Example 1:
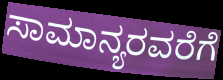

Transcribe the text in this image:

ಸಾಮಾನ್ಯರವರೆಗೆ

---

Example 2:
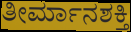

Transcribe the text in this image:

ತೀರ್ಮಾನಶಕ್ತಿ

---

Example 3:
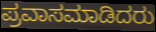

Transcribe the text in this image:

ಪ್ರವಾಸಮಾಡಿದರು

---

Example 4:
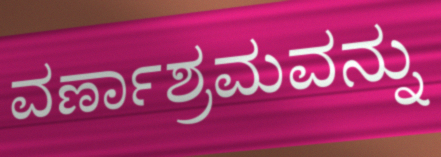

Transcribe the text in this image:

ವರ್ಣಾಶ್ರಮವನ್ನು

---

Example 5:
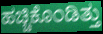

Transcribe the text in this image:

ಹಚ್ಚಿಕೊಂಡಿತ್ತು